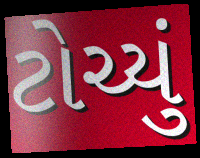
ટોચ્યું